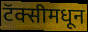
टॅक्सीमधून